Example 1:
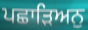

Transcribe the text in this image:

ਪਛਾੜਿਅਨੁ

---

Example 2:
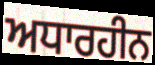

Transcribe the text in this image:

ਅਧਾਰਹੀਨ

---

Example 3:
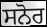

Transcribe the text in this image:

ਸਨੋਰ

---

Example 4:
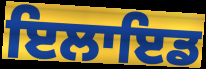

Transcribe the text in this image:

ਇਲਾਇਡ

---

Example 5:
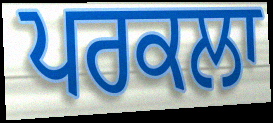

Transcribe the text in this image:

ਪਰਕਲਾ